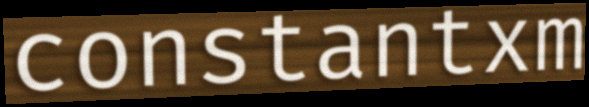
constantxm